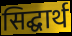
सिद्घार्थ